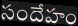
సందేహం